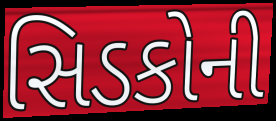
સિડકોની